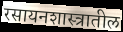
रसायनशास्त्रातील